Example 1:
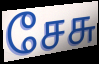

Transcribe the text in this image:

சேசு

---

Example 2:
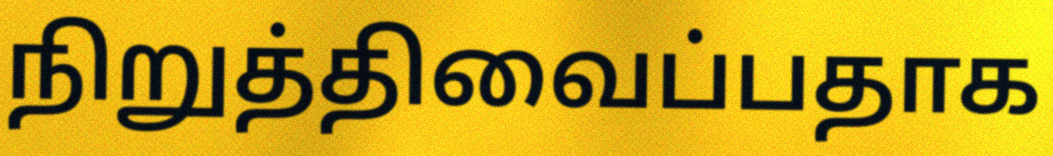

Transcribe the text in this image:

நிறுத்திவைப்பதாக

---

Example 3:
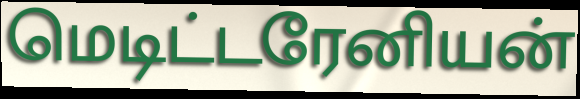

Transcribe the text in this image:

மெடிட்டரேனியன்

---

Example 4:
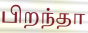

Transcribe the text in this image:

பிறந்தா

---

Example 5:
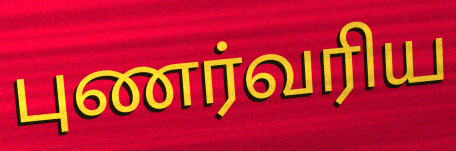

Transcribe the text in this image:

புணர்வரிய